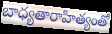
బాధ్యతారాహిత్యంతో